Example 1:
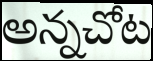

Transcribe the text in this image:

అన్నచోట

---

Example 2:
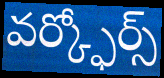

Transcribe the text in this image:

వర్క్ఫోర్స్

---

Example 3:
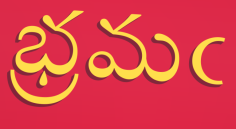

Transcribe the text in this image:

భ్రమఁ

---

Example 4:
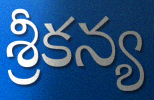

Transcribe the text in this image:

శ్రీకన్య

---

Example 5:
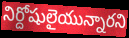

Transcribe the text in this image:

నిర్దోషులైయున్నారని